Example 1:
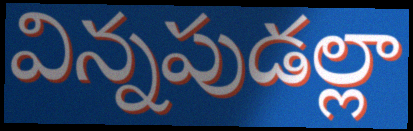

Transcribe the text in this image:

విన్నపుడల్లా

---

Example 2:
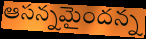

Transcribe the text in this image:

ఆసన్నమైందన్న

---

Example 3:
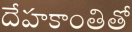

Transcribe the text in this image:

దేహకాంతితో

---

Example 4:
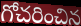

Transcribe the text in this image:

గోచరించిన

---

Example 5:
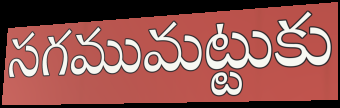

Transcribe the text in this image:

సగముమట్టుకు